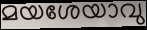
മയശേയാവു